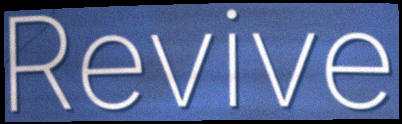
Revive